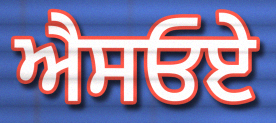
ਐਸਓਏ